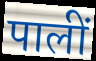
पालीं